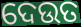
ଦେଉତ